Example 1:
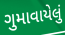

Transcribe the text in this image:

ગુમાવાયેલું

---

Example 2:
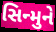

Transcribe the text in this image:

સિન્મુને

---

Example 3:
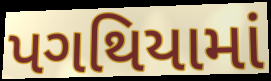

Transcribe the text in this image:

પગથિયામાં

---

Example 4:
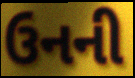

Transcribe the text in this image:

ઉનની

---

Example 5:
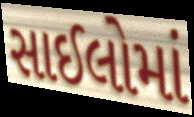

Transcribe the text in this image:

સાઈલોમાં